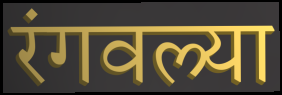
रंगवल्या